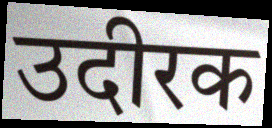
उदीरक